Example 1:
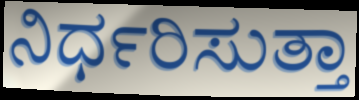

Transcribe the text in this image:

ನಿರ್ಧರಿಸುತ್ತಾ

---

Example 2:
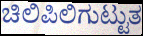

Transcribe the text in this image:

ಚಿಲಿಪಿಲಿಗುಟ್ಟುತ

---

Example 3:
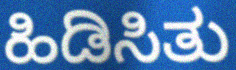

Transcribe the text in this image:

ಹಿಡಿಸಿತು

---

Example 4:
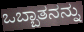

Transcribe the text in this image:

ಒಬ್ಬಾತನನ್ನು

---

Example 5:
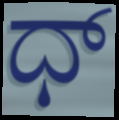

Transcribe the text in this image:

ಧ್